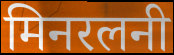
मिनरलनी